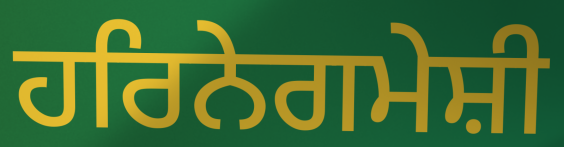
ਹਰਿਨੇਗਮੇਸ਼ੀ